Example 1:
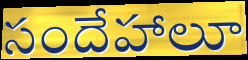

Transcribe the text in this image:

సందేహాలూ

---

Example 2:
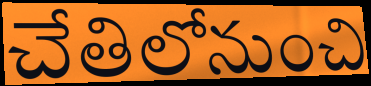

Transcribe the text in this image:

చేతిలోనుంచి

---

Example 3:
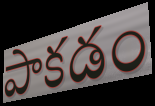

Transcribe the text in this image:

పాకడం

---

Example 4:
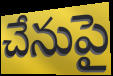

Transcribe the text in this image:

చేనుపై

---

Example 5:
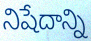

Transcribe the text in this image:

నిషేదాన్ని